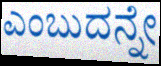
ಎಂಬುದನ್ನೇ